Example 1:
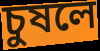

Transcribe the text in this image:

চুষলে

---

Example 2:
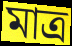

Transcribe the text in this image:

মাত্র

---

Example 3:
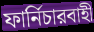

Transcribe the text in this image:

ফার্নিচারবাহী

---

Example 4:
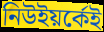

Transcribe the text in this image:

নিউইয়র্কেই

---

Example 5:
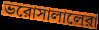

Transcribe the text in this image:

ভরোসালালেরা